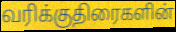
வரிக்குதிரைகளின்